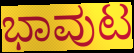
ಭಾವುಟ